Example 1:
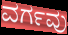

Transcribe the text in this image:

ವರ್ಗವು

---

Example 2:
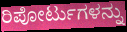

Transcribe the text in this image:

ರಿಪೋರ್ಟುಗಳನ್ನು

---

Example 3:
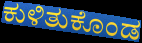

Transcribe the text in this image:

ಕುಳಿತುಕೊಂಡ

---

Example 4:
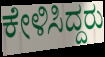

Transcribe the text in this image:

ಕೇಳಿಸಿದ್ದರು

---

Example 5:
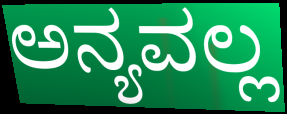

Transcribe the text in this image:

ಅನ್ಯವಲ್ಲ